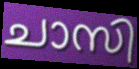
ചാസി